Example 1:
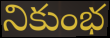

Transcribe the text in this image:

నికుంభ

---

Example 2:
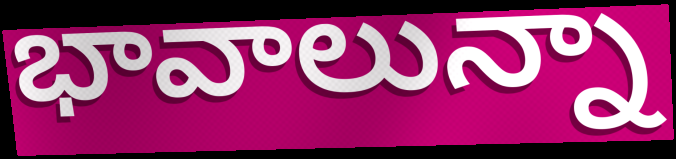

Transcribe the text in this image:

భావాలున్నా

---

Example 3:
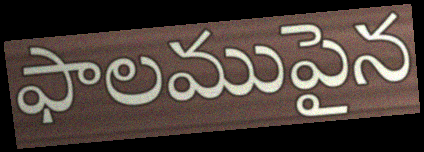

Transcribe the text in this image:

ఫాలముపైన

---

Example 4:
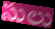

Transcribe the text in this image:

సులు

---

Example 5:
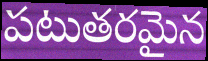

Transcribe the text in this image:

పటుతరమైన